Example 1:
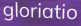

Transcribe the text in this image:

gloriatio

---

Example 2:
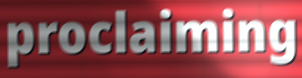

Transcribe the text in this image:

proclaiming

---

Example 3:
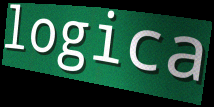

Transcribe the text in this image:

logica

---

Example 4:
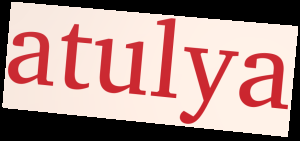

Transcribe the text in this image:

atulya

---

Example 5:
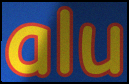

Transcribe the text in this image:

alu